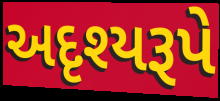
અદૃશ્યરૂપે